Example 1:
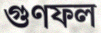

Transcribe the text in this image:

গুণফল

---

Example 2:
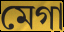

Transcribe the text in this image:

মেগা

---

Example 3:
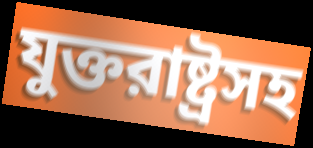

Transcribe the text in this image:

যুক্তরাষ্ট্রসহ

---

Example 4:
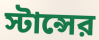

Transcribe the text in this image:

স্টান্সের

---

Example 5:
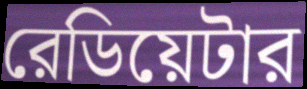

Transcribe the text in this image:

রেডিয়েটার